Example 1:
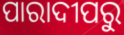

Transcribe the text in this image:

ପାରାଦୀପରୁ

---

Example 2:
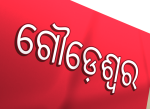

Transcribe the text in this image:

ଗୌଡ଼େଶ୍ୱର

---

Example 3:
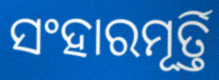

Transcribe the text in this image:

ସଂହାରମୂର୍ତ୍ତି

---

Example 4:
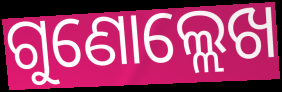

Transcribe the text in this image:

ଗୁଣୋଲ୍ଲେଖ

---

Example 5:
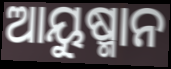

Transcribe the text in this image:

ଆୟୁଷ୍ମାନ